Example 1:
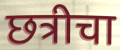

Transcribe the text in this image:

छत्रीचा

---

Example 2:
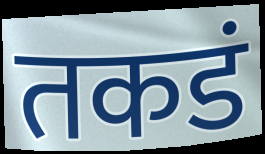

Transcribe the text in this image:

तकडं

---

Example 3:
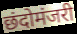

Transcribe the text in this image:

छंदोमंजरी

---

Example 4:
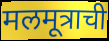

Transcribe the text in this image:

मलमूत्राची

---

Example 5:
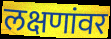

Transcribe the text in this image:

लक्षणांवर